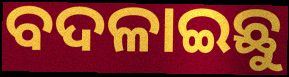
ବଦଳାଇଛୁ